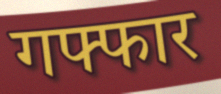
गफ्फार